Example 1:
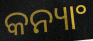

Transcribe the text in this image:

କନ୍ୟାଂ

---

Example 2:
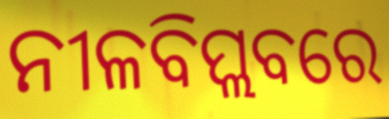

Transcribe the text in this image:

ନୀଳବିପ୍ଲବରେ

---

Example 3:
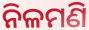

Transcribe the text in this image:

ନିଳମଣି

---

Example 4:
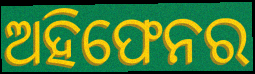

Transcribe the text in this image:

ଅହିଫେନର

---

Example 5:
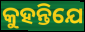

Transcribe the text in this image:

କୁହନ୍ତିଯେ